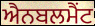
ਐਨਬਲਮੈਂਟ